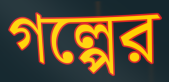
গল্পের